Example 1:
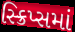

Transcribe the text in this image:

સ્ક્રિપ્સમાં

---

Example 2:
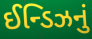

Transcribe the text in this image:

ઈન્ડિઝનું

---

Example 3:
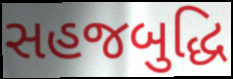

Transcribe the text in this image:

સહજબુદ્ધિ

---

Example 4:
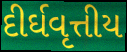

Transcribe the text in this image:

દીર્ઘવૃત્તીય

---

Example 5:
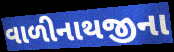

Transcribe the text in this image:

વાળીનાથજીના